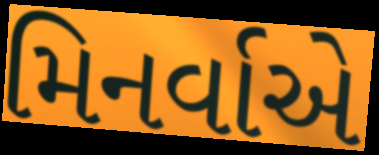
મિનર્વાએ